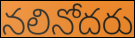
నలినోదరు